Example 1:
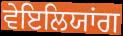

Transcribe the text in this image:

ਵੇਇਲਿਯਾਂਗ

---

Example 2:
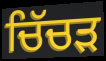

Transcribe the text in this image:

ਚਿੱਚੜ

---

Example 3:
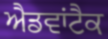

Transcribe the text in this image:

ਐਡਵਾਂਟੈਕ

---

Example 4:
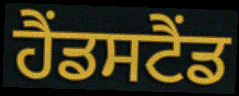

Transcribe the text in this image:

ਹੈਂਡਸਟੈਂਡ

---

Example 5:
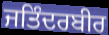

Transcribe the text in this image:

ਜਤਿੰਦਰਬੀਰ